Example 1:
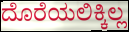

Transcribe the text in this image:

ದೊರೆಯಲಿಕ್ಕಿಲ್ಲ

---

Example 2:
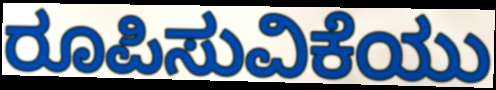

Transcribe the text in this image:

ರೂಪಿಸುವಿಕೆಯು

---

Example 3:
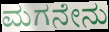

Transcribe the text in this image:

ಮಗನೇನು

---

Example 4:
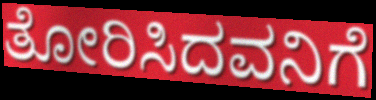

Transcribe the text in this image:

ತೋರಿಸಿದವನಿಗೆ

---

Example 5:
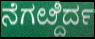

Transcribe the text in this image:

ನೆಗೞ್ದಿರ್ದ